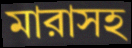
মারাসহ